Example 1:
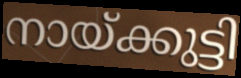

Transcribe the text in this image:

നായ്ക്കുട്ടി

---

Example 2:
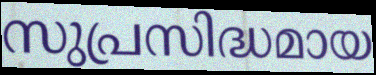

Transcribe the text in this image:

സുപ്രസിദ്ധമായ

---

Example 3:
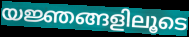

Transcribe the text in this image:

യജ്ഞങ്ങളിലൂടെ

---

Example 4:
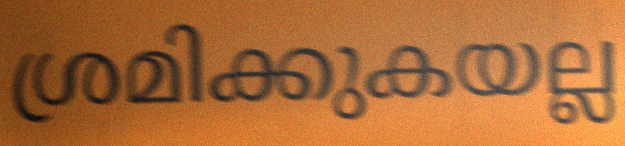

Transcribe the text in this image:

ശ്രമിക്കുകയല്ല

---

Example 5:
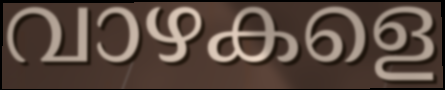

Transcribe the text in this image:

വാഴകളെ